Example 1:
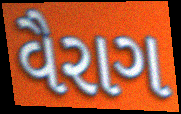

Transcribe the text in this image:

વૈરાગ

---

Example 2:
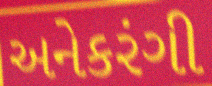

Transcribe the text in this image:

અનેકરંગી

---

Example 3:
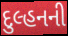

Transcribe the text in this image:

દુલ્હનની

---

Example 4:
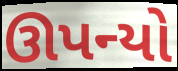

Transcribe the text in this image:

ઊપન્યો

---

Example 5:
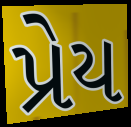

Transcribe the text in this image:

પ્રેય